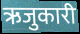
ऋजुकारी